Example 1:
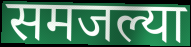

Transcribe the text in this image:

समजल्या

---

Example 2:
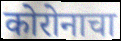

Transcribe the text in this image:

कोरोनाचा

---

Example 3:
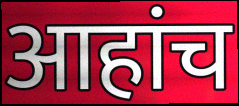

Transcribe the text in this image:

आहांच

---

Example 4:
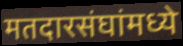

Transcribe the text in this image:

मतदारसंघांमध्ये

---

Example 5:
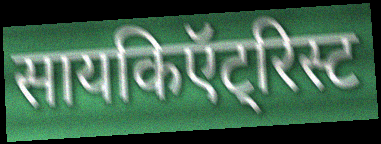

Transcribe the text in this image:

सायकिऍट्रिस्ट